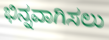
ಭಿನ್ನವಾಗಿಸಲು